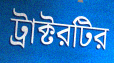
ট্রাক্টরটির